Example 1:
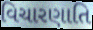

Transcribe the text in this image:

વિચારણાતિ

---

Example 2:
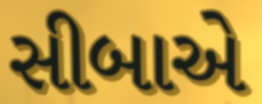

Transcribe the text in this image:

સીબાએ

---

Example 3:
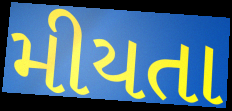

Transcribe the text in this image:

મીયતા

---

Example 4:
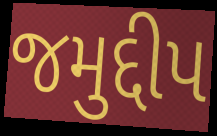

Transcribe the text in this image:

જમુદ્દીપ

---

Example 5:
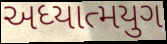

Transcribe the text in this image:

અધ્યાત્મયુગ